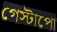
গেস্টাপো